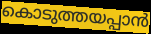
കൊടുത്തയപ്പാൻ